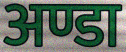
अण्डा